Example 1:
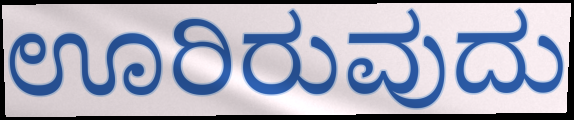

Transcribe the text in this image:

ಊರಿರುವುದು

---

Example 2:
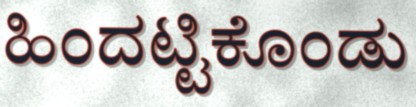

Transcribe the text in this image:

ಹಿಂದಟ್ಟಿಕೊಂಡು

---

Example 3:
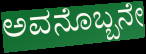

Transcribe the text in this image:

ಅವನೊಬ್ಬನೇ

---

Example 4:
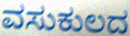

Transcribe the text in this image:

ವಸುಕುಲದ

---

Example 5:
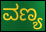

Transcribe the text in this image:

ವಣ್ಯ